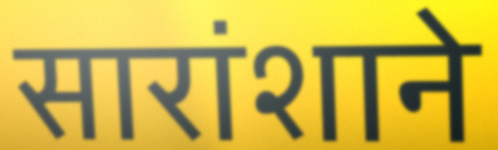
सारांशाने